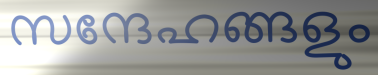
സന്ദേഹങ്ങളും